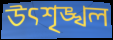
উৎশৃঙ্খল